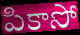
పికాసో